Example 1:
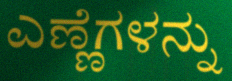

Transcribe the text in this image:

ಎಣ್ಣೆಗಳನ್ನು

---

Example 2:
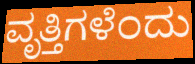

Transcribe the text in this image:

ವೃತ್ತಿಗಳೆಂದು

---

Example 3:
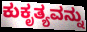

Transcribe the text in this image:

ಕುಕೃತ್ಯವನ್ನು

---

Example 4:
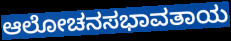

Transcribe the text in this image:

ಆಲೋಚನಸಭಾವತಾಯ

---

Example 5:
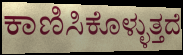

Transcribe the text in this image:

ಕಾಣಿಸಿಕೊಳ್ಳುತ್ತದೆ